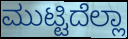
ಮುಟ್ಟಿದೆಲ್ಲಾ